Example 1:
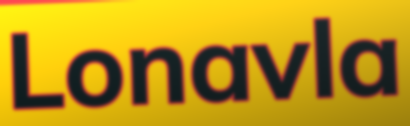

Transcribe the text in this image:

Lonavla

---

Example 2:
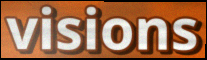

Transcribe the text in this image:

visions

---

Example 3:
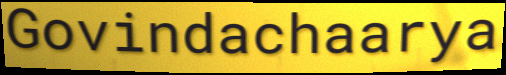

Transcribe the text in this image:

Govindachaarya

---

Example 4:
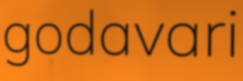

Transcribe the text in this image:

godavari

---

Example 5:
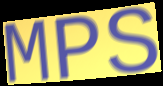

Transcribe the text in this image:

MPS